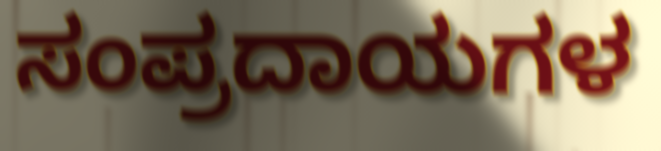
ಸಂಪ್ರದಾಯಗಳ